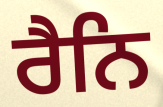
ਰੈਨਿ